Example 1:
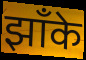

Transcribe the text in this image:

झाँके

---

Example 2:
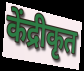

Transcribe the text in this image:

केंद्रीकृत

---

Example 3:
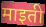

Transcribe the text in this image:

माइती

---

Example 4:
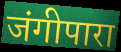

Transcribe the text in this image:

जंगीपारा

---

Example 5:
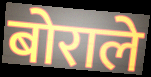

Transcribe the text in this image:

बोराले